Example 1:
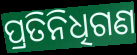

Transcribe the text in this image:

ପ୍ରତିନିଧିଗଣ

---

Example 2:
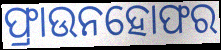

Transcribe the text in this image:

ଫ୍ରାଉନହୋଫର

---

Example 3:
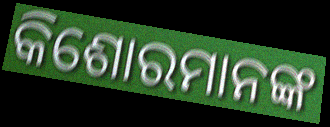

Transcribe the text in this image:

କିଶୋରମାନଙ୍କ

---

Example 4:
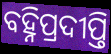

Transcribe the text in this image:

ବହ୍ନିପ୍ରଦୀପ୍ତି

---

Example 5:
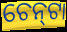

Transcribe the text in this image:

ଚେନ୍‌ଟା